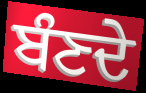
ਬੰਣਦੇ